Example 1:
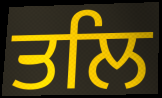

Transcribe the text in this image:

ਤਲਿ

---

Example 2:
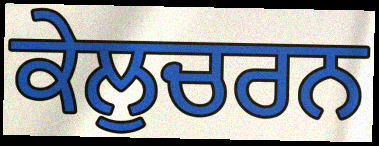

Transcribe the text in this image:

ਕੇਲੁਚਰਨ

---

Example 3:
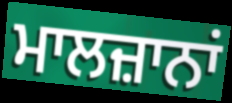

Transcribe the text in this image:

ਮਾਲਜ਼ਾਨਾਂ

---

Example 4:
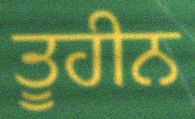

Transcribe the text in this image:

ਤੂਹੀਨ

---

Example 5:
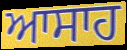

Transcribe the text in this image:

ਆਸਾਹ